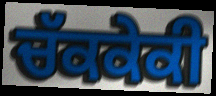
ਚੱਕਕੇਕੀ